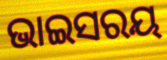
ଭାଇସରୟ